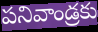
పనివాండ్రకు